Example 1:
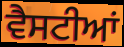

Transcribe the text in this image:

ਵੈਸਟੀਆਂ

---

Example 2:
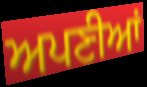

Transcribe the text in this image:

ਅਪਣੀਆਂ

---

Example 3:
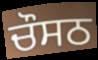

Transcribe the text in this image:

ਚੌਸਠ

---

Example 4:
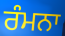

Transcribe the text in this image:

ਰੰਮਨਾ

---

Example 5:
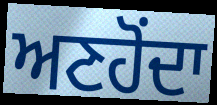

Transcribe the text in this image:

ਅਣਹੋਂਦਾ